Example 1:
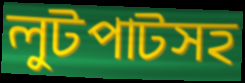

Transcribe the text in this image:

লুটপাটসহ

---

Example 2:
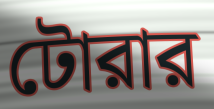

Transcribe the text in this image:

টোরার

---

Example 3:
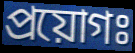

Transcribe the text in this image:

প্রয়োগঃ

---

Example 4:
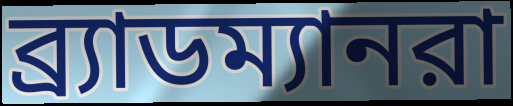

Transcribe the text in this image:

ব্র্যাডম্যানরা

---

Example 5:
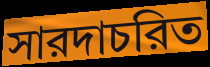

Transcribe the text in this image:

সারদাচরিত